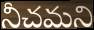
నీచమని